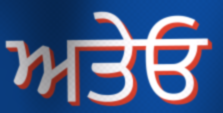
ਅਤੇਓ